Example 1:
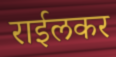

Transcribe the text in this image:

राईलकर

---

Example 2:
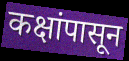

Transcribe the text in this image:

कक्षांपासून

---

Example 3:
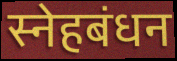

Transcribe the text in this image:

स्नेहबंधन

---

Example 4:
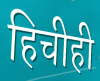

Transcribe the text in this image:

हिचीही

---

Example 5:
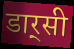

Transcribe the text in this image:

डार्सी